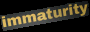
immaturity